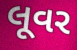
લૂવર